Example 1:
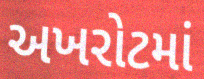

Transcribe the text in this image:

અખરોટમાં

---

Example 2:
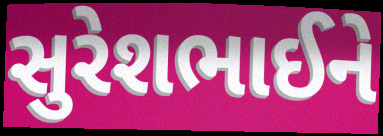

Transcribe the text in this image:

સુરેશભાઈને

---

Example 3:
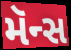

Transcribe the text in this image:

મૅન્સ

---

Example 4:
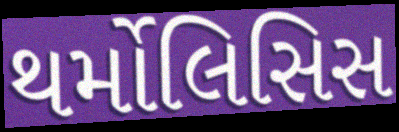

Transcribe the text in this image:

થર્મોલિસિસ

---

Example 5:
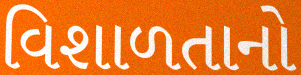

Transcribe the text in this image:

વિશાળતાનો